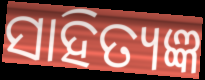
ସାହିତ୍ୟଜ୍ଞ